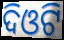
ଦିଓଟି